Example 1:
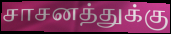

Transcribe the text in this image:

சாசனத்துக்கு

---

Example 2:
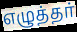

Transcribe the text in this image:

எழுத்தர்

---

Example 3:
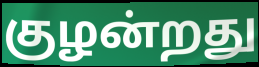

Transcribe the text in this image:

குழன்றது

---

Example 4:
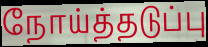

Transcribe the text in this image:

நோய்த்தடுப்பு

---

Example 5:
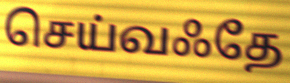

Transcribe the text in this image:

செய்வஃதே